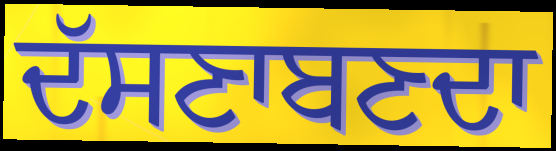
ਦੱਸਣਾਬਣਦਾ